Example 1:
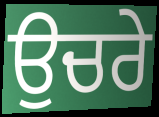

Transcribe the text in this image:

ਉਚਰੇ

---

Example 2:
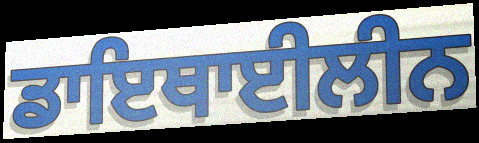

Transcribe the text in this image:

ਡਾਇਥਾਈਲੀਨ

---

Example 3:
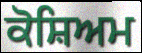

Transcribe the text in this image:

ਕੋਸ਼ਿਅਮ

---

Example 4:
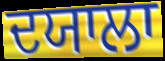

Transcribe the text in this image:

ਦਯਾਲਾ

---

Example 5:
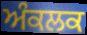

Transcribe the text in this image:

ਅੰਕਲਕ